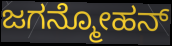
ಜಗನ್ಮೋಹನ್